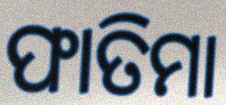
ଫାତିମା